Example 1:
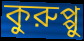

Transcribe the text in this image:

কুরুপ্পু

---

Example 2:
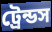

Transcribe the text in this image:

ট্রেন্ডস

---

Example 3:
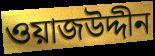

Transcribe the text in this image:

ওয়াজউদ্দীন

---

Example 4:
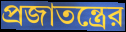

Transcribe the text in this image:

প্রজাতন্ত্রের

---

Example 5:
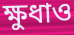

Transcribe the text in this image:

ক্ষুধাও